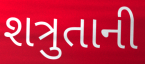
શત્રુતાની